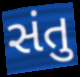
સંતુ